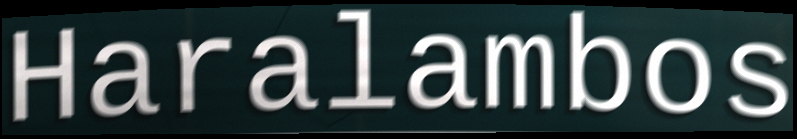
Haralambos